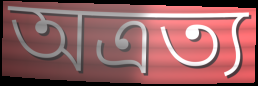
অত্রত্য